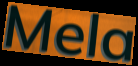
Mela